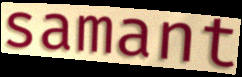
samant